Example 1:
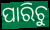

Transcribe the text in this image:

ପାରିଚୁ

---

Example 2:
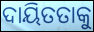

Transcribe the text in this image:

ଦାୟିତତାକୁ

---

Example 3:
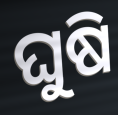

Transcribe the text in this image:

ଘୁଷି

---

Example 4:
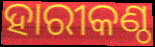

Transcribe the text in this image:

ହାରୀକଣ୍ଠ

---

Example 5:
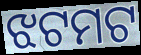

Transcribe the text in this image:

ଝଟମଟ